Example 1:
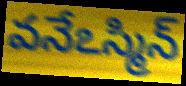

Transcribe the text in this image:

వనేఽస్మిన్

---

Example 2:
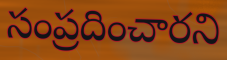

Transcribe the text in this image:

సంప్రదించారని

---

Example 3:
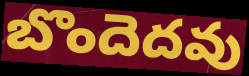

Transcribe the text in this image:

బొందెదవు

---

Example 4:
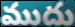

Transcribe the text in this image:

ముదు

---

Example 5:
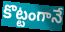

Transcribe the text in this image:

కొట్టంగానే